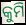
କୁମି